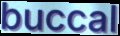
buccal